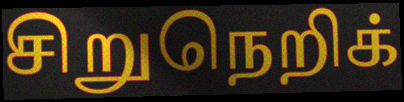
சிறுநெறிக்